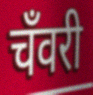
चँवरी